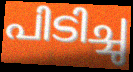
പിടിച്ചു